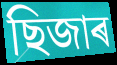
ছিজাৰ